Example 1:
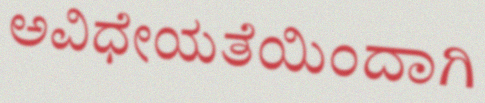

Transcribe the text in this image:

ಅವಿಧೇಯತೆಯಿಂದಾಗಿ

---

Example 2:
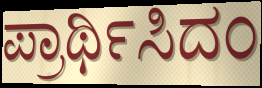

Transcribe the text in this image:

ಪ್ರಾರ್ಥಿಸಿದಂ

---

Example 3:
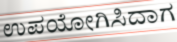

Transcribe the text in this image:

ಉಪಯೋಗಿಸಿದಾಗ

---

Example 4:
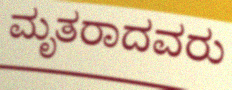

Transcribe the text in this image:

ಮೃತರಾದವರು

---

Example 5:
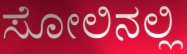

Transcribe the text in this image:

ಸೋಲಿನಲ್ಲಿ